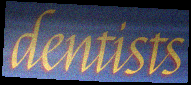
dentists